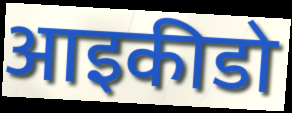
आइकीडो